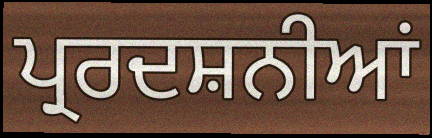
ਪ੍ਰਰਦਸ਼ਨੀਆਂ